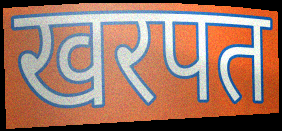
खरपत